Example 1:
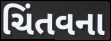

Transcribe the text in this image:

ચિંતવના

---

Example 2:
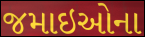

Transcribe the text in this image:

જમાઇઓના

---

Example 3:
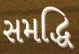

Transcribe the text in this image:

સમદ્ધિ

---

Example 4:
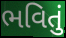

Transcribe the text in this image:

ભવિતું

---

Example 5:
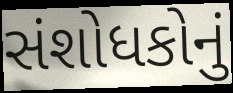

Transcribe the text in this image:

સંશોધકોનું